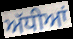
ਅੱਧੀਆਂ